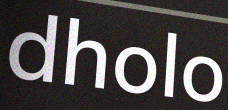
dholo